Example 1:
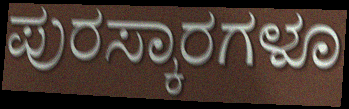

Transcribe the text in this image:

ಪುರಸ್ಕಾರಗಳೂ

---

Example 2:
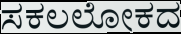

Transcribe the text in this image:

ಸಕಲಲೋಕದ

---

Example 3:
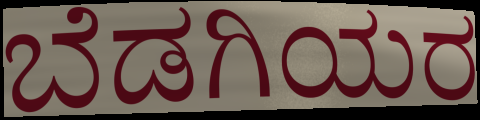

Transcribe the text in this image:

ಬೆಡಗಿಯರ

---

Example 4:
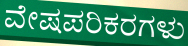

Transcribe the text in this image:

ವೇಷಪರಿಕರಗಳು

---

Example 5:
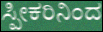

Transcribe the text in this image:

ಸ್ಪೀಕರಿನಿಂದ